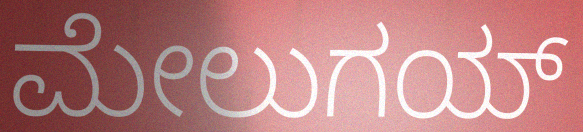
ಮೇಲುಗಯ್